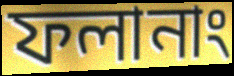
ফলানাং